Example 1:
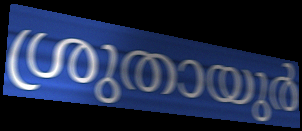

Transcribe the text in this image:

ശ്രുതായുർ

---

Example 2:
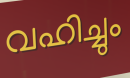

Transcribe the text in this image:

വഹിച്ചും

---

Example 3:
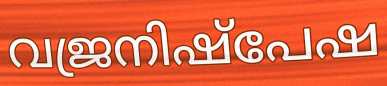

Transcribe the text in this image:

വജ്രനിഷ്പേഷ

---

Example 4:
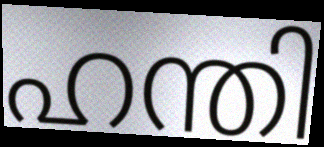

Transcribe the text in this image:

ഹന്തി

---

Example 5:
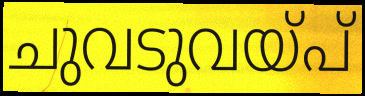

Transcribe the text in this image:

ചുവടുവയ്പ്